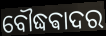
ବୌଦ୍ଧଵାଦର